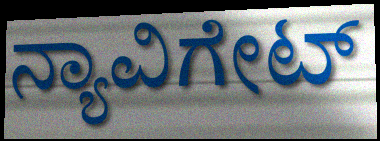
ನ್ಯಾವಿಗೇಟ್